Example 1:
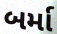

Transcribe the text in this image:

બર્મા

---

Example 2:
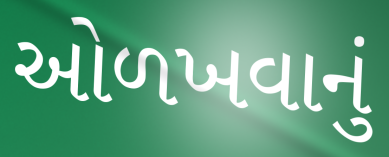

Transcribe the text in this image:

ઓળખવાનું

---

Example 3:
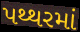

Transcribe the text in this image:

પથ્થરમાં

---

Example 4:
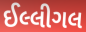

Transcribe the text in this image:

ઈલ્લીગલ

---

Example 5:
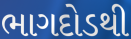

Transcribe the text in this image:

ભાગદોડથી